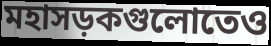
মহাসড়কগুলোতেও